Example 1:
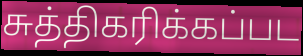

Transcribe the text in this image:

சுத்திகரிக்கப்பட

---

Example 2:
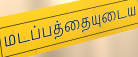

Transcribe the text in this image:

மடப்பத்தையுடைய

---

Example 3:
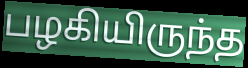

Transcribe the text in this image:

பழகியிருந்த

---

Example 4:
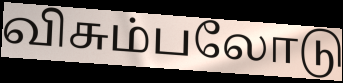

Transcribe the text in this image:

விசும்பலோடு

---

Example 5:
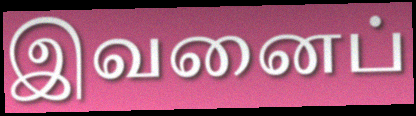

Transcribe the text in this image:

இவனைப்